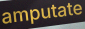
amputate